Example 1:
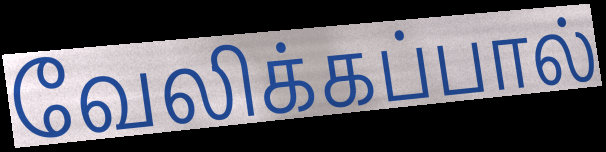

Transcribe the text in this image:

வேலிக்கப்பால்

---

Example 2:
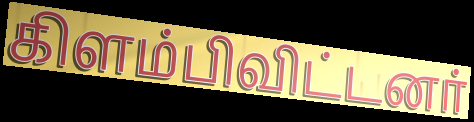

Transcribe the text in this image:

கிளம்பிவிட்டனர்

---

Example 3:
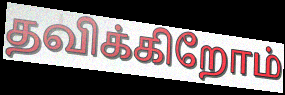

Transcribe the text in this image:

தவிக்கிறோம்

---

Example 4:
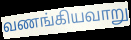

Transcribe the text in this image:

வணங்கியவாறு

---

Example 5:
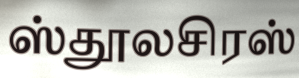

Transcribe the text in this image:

ஸ்தூலசிரஸ்